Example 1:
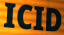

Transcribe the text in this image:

ICID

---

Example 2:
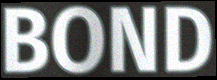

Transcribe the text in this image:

BOND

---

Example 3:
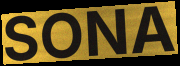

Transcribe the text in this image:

SONA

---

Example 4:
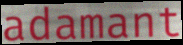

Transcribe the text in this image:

adamant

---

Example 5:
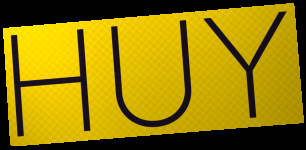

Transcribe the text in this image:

HUY